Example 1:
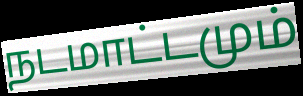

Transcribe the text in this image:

நடமாட்டமும்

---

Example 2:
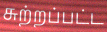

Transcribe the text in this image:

சுற்றப்பட்ட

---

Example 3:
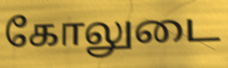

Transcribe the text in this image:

கோலுடை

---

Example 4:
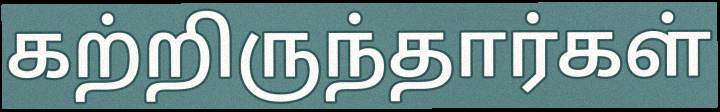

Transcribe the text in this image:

கற்றிருந்தார்கள்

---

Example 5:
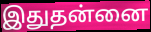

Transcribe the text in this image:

இதுதன்னை